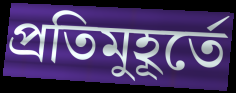
প্রতিমুহূর্তে